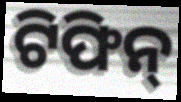
ଟିଫିନ୍